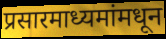
प्रसारमाध्यमांमधून